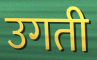
उगती